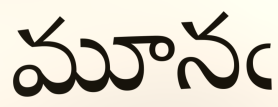
మూనఁ